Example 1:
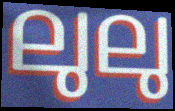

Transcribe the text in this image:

ലുലു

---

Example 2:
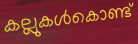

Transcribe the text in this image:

കല്ലുകൾകൊണ്ട്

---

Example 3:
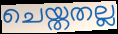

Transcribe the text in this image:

ചെയ്തതല്ല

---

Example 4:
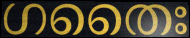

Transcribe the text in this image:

ഗതൈഃ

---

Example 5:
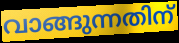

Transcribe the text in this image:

വാങ്ങുന്നതിന്